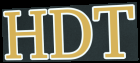
HDT